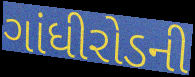
ગાંધીરોડની